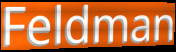
Feldman